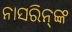
ନାସରିନ୍‌ଙ୍କ